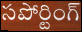
సపోర్టింగ్